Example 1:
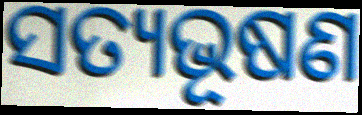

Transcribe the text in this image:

ସତ୍ୟଭୂଷଣ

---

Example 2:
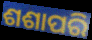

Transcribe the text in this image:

ଶଶାପରି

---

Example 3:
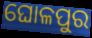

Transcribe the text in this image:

ଘୋଳପୁର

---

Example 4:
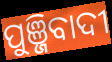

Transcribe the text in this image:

ପୁଞ୍ଜିବାଦୀ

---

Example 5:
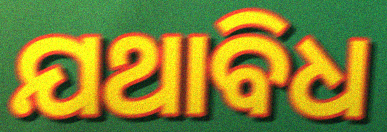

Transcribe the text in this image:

ଯଥାବିଧ